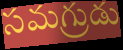
సమగ్రుడు